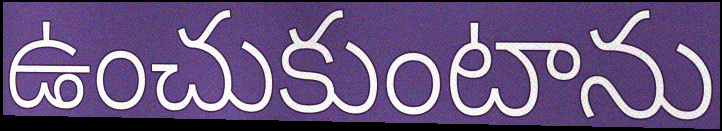
ఉంచుకుంటాను